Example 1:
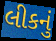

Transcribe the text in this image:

લીકનું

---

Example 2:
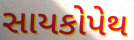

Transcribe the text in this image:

સાયકોપેથ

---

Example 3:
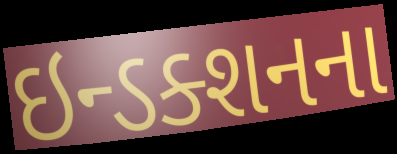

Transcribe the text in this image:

ઇન્ડક્શનના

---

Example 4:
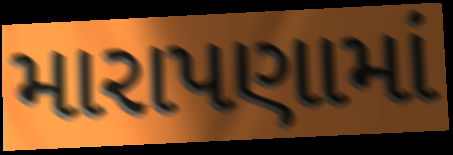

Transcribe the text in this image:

મારાપણામાં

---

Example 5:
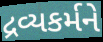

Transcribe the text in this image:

દ્રવ્યકર્મને